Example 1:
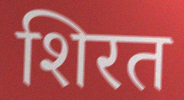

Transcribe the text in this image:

शिरत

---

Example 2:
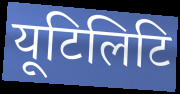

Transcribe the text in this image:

यूटिलिटि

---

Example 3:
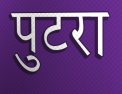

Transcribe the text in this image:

पुटरा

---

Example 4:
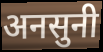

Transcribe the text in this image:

अनसुनी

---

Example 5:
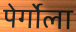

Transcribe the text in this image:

पेर्गोला